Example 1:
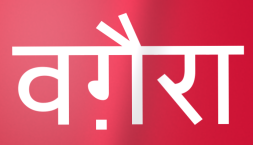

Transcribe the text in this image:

वग़ैरा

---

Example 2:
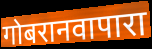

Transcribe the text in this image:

गोबरानवापारा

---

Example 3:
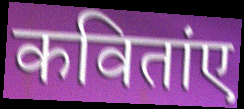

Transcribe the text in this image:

कवितांए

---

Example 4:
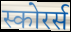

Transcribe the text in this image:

स्कोरर्स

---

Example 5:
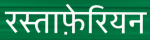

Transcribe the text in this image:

रस्ताफ़ेरियन